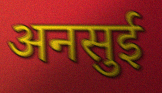
अनसुई